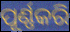
ପୂର୍ଣ୍ଣକରି